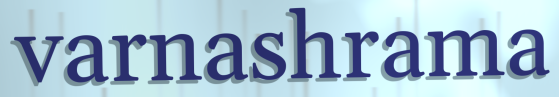
varnashrama